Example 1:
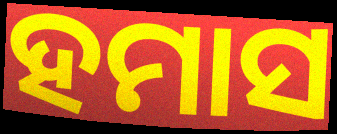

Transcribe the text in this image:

ହମାସ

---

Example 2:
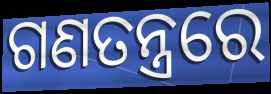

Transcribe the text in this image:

ଗଣତନ୍ତ୍ରରେ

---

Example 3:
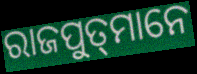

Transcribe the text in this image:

ରାଜପୁତ୍‍ମାନେ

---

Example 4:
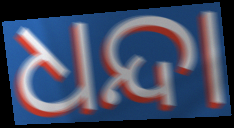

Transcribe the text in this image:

ଧନ୍ଦା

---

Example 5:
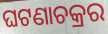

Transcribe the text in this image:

ଘଟଣାଚକ୍ରର